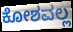
ಕೋಶವಲ್ಲ